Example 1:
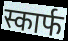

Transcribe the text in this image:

स्कार्फ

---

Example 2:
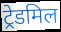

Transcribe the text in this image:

ट्रेडमिल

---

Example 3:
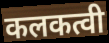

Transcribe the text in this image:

कलकत्वी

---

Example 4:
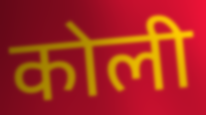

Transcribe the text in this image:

कोली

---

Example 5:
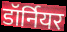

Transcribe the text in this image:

डॉर्नियर